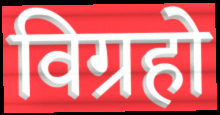
विग्रहो